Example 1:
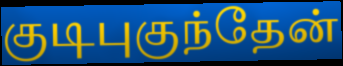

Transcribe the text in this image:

குடிபுகுந்தேன்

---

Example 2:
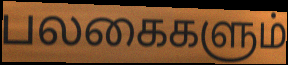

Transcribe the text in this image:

பலகைகளும்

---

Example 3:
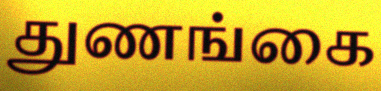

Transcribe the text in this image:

துணங்கை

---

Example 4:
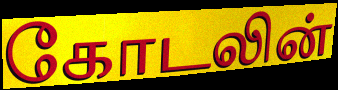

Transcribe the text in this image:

கோடலின்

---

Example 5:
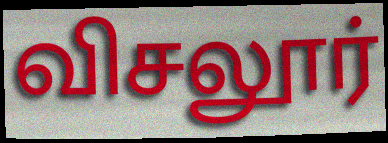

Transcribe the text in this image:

விசலூர்